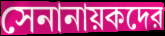
সেনানায়কদের